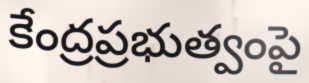
కేంద్రప్రభుత్వంపై